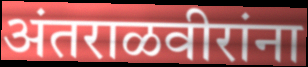
अंतराळवीरांना